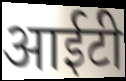
आईटी